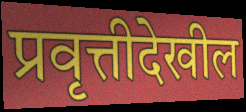
प्रवृत्तीदेखील